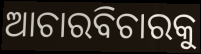
ଆଚାରବିଚାରକୁ